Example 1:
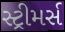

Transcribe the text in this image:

સ્ટ્રીમર્સ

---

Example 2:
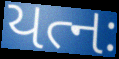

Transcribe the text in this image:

યત્નઃ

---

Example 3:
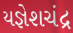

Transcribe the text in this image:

યજ્ઞેશચંદ્ર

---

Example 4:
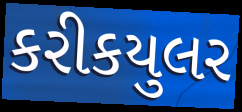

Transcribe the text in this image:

કરીકયુલર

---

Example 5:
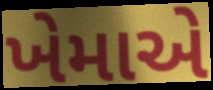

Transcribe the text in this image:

ખેમાએ